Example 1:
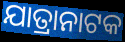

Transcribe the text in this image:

ଯାତ୍ରାନାଟକ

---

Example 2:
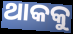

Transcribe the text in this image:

ଥାକକୁ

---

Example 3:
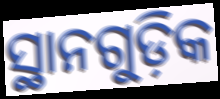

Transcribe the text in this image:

ସ୍ଥାନଗୁଡ଼ିକ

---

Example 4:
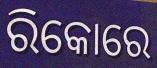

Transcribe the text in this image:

ରିକୋରେ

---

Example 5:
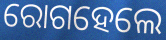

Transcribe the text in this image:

ରୋଗହେଲେ